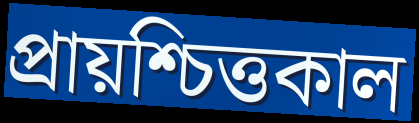
প্রায়শ্চিত্তকাল